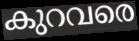
കുറവരെ